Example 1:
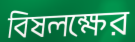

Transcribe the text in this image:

বিষলক্ষের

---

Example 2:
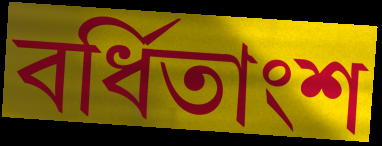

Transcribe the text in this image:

বর্ধিতাংশ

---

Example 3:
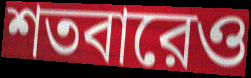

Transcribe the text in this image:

শতবারেও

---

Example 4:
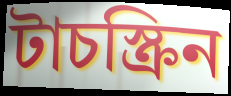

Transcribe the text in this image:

টাচস্ক্রিন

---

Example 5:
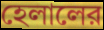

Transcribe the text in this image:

হেলালের